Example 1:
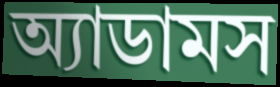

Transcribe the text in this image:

অ্যাডামস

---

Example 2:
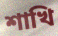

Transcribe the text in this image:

শাখি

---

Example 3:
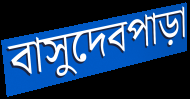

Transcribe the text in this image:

বাসুদেবপাড়া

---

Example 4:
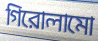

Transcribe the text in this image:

গিরোলামো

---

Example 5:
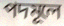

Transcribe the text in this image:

পদমূলে